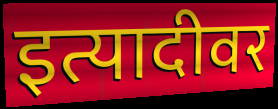
इत्यादीवर